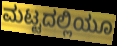
ಮಟ್ಟದಲ್ಲಿಯೂ